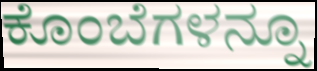
ಕೊಂಬೆಗಳನ್ನೂ